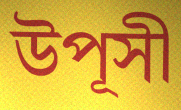
উপূসী